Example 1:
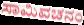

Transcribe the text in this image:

ಸಾಮಿವಚನಂ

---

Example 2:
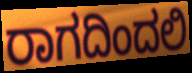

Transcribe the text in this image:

ರಾಗದಿಂದಲಿ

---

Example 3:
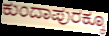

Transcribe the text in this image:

ಕುಂದಾಪುರಕ್ಕೂ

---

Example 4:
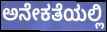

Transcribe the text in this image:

ಅನೇಕತೆಯಲ್ಲಿ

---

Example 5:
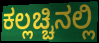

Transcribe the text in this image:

ಕಲ್ಲಚ್ಚಿನಲ್ಲಿ